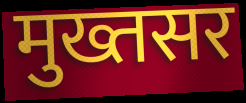
मुख्तसर